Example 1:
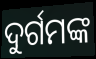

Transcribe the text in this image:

ଦୁର୍ଗମଙ୍କ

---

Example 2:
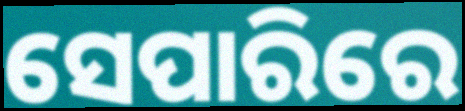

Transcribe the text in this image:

ସେପାରିରେ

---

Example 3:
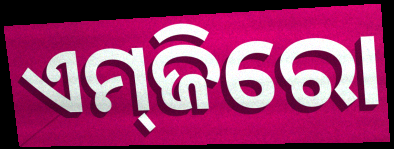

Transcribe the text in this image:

ଏମ୍‌ଜିରୋ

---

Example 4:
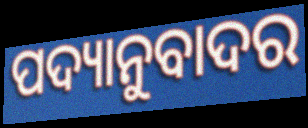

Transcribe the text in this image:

ପଦ୍ୟାନୁବାଦର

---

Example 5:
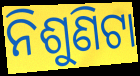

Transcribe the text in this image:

ନିଶୁଣିଟା